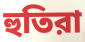
হুতিরা